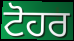
ਟੋਹਰ